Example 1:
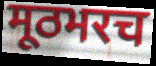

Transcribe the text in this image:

मूठभरच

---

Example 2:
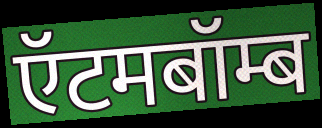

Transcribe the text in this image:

ऍटमबॉम्ब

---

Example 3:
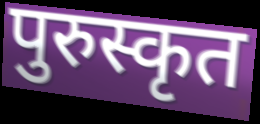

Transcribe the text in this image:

पुरुस्कृत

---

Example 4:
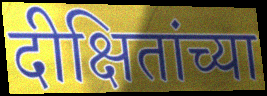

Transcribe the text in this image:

दीक्षितांच्या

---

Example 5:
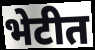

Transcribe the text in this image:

भेटीत